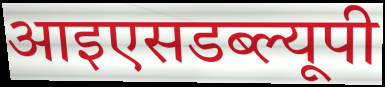
आइएसडब्ल्यूपी